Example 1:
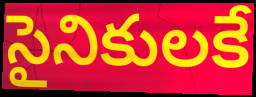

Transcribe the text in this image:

సైనికులకే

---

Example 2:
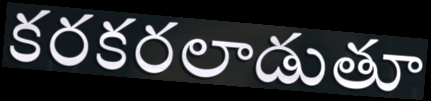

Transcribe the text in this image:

కరకరలాడుతూ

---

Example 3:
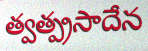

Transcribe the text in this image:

త్వత్ప్రసాదేన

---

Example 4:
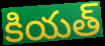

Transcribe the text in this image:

కియత్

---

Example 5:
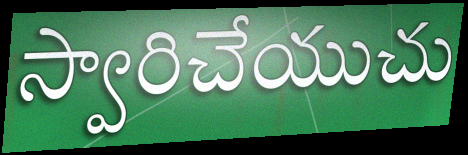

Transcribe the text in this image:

స్వారిచేయుచు